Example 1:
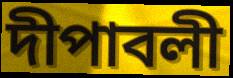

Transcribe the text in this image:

দীপাবলী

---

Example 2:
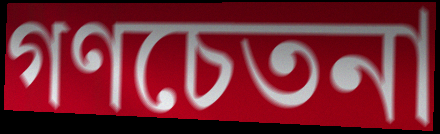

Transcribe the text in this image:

গণচেতনা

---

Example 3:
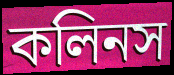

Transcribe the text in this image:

কলিনস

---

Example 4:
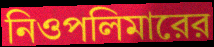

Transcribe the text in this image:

নিওপলিমারের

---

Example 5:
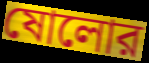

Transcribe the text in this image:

ষোলোর